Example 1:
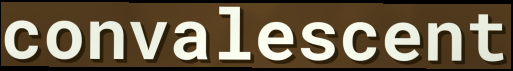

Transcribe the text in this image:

convalescent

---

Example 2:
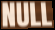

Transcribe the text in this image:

NULL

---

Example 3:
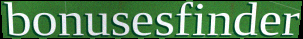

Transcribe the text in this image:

bonusesfinder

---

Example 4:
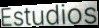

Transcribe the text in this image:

Estudios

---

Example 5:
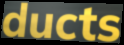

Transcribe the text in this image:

ducts